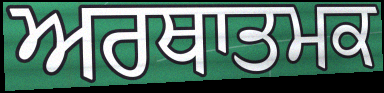
ਅਰਥਾਤਮਕ